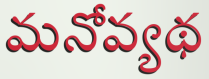
మనోవ్యథ